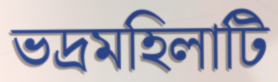
ভদ্রমহিলাটি